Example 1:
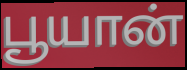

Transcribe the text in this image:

பூயான்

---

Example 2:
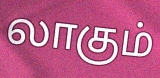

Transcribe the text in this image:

லாகும்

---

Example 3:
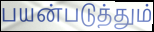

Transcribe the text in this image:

பயன்படுத்தும்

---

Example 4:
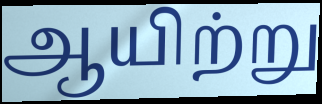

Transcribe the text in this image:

ஆயிற்று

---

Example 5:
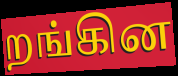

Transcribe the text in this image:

றங்கின